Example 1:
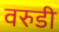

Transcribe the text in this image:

वरुडी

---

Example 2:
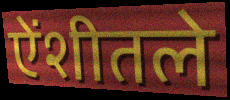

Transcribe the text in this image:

ऐंशीतले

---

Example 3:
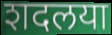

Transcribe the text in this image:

शदलया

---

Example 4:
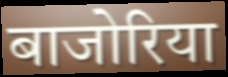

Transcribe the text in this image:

बाजोरिया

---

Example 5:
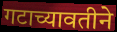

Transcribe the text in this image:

गटाच्यावतीने